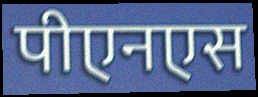
पीएनएस